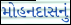
મોહનદાસનું